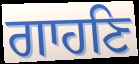
ਗਾਹਣਿ